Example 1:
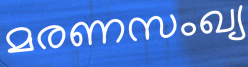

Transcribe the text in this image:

മരണസംഖ്യ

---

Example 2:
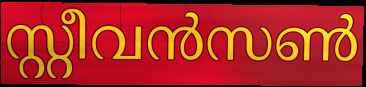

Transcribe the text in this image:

സ്റ്റീവൻസൺ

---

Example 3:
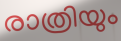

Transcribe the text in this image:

രാത്രിയും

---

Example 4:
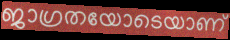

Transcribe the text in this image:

ജാഗ്രതയോടെയാണ്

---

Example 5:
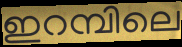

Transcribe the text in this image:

ഇറമ്പിലെ